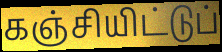
கஞ்சியிட்டுப்